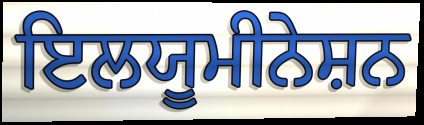
ਇਲਯੂਮੀਨੇਸ਼ਨ